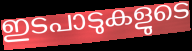
ഇടപാടുകളുടെ